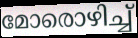
മോരൊഴിച്ച്